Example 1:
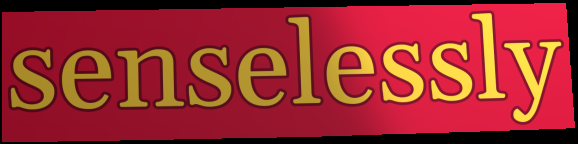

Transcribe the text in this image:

senselessly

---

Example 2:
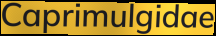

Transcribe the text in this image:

Caprimulgidae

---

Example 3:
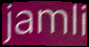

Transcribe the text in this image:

jamli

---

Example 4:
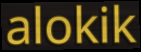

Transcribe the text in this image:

alokik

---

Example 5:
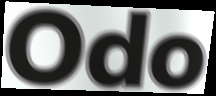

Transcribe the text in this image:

Odo